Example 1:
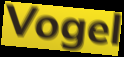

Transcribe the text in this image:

Vogel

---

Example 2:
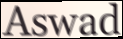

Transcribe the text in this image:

Aswad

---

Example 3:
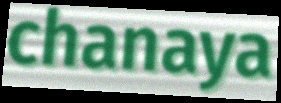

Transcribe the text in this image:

chanaya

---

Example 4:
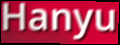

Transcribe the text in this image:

Hanyu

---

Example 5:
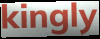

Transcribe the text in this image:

kingly